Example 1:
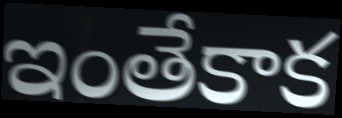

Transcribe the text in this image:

ఇంతేకాక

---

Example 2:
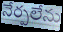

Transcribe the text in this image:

నేర్పలేను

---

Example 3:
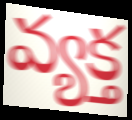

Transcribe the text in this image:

వ్యక్త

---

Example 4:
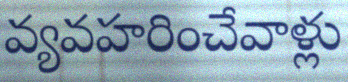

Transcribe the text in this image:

వ్యవహరించేవాళ్లు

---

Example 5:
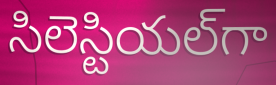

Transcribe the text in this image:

సిలెస్టియల్‌గా